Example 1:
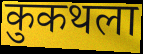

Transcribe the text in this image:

कुकथला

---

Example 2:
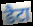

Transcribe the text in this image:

डैटा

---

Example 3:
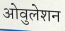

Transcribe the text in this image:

ओवुलेशन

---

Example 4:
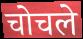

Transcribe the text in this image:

चोचले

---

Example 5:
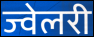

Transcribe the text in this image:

ज्वेलरी